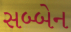
સબ્બેન